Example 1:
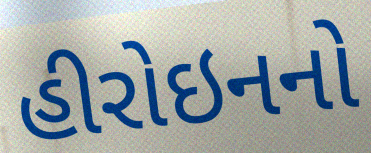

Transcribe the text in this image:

હીરોઇનનો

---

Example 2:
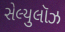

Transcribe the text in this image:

સેલ્યુલૉઝ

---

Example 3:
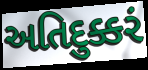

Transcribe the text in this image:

અતિદુક્કરં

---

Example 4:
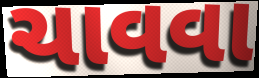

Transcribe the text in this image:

ચાવવા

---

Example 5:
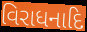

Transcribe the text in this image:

વિરાધનાદિ